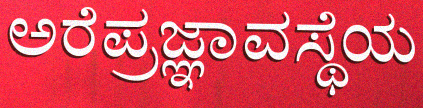
ಅರೆಪ್ರಜ್ಞಾವಸ್ಥೆಯ